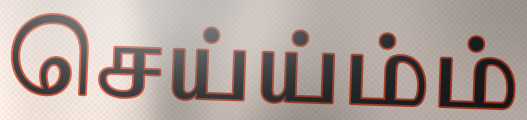
செய்ய்ம்ம்